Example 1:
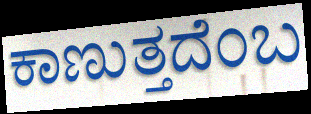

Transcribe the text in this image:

ಕಾಣುತ್ತದೆಂಬ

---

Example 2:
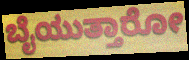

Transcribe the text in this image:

ಬೈಯುತ್ತಾರೋ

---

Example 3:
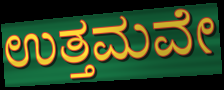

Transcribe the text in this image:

ಉತ್ತಮವೇ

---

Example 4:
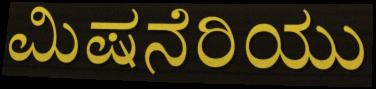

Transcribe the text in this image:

ಮಿಷನೆರಿಯು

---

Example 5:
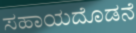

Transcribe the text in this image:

ಸಹಾಯದೊಡನೆ